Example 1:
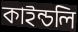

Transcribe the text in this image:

কাইন্ডলি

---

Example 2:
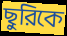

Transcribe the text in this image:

ছুরিকে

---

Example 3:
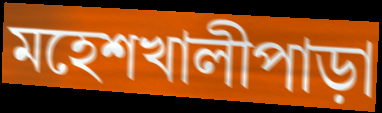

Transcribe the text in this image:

মহেশখালীপাড়া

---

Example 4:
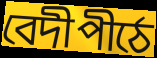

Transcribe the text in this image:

বেদীপীঠে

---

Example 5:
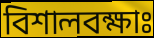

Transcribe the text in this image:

বিশালবক্ষাঃ